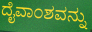
ದೈವಾಂಶವನ್ನು